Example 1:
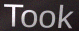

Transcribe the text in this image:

Took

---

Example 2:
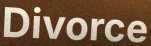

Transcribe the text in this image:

Divorce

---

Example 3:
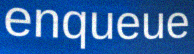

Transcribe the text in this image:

enqueue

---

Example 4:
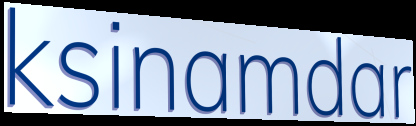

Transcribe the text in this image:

ksinamdar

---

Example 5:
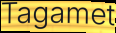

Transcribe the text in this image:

Tagamet